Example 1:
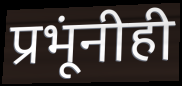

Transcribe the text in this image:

प्रभूंनीही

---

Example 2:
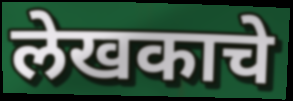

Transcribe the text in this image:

लेखकाचे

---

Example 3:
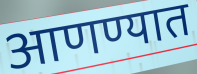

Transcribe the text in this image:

आणण्यात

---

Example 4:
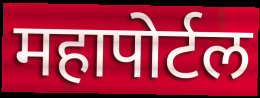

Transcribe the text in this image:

महापोर्टल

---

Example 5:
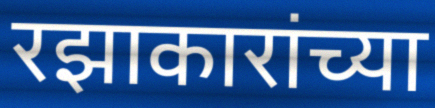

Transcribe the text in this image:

रझाकारांच्या